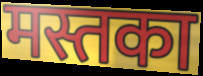
मस्तका